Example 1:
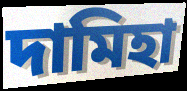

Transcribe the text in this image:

দামিহা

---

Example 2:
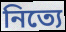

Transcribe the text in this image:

নিত্যে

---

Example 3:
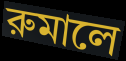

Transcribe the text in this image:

রুমালে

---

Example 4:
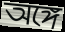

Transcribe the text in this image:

অঙ্গে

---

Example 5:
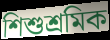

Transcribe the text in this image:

শিশুশ্রমিক